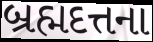
બ્રહ્મદત્તના